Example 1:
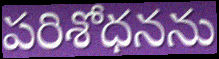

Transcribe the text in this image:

పరిశోధనను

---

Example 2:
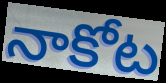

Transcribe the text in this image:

నాకోట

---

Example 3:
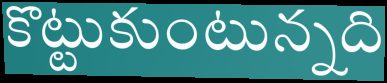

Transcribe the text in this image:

కొట్టుకుంటున్నది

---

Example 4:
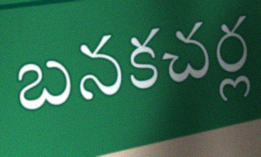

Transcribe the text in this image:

బనకచర్ల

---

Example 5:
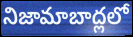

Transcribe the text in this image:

నిజామాబాద్లలో